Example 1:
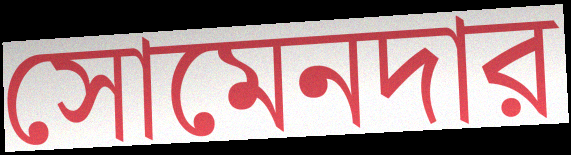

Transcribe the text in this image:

সোমেনদার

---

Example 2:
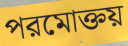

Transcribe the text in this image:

পরমোক্তয়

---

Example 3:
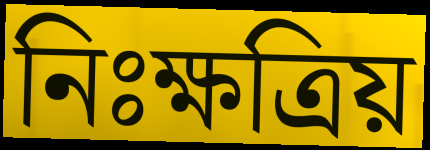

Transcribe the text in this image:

নিঃক্ষত্রিয়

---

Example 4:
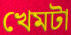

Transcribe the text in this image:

খেমটা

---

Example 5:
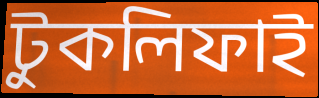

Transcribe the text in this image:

টুকলিফাই